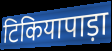
टिकियापाड़ा